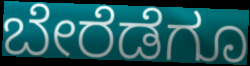
ಬೇರೆಡೆಗೂ